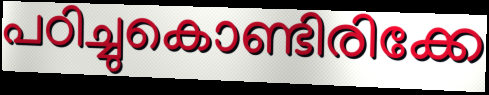
പഠിച്ചുകൊണ്ടിരിക്കേ